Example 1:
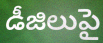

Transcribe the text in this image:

డీజిలుపై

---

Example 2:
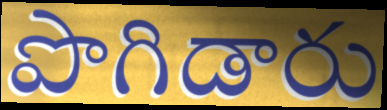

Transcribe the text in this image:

పొగిడారు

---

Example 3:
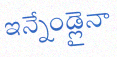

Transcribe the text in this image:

ఇన్నేండ్లైనా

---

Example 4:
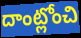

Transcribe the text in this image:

దాంట్లోంచి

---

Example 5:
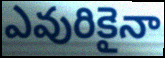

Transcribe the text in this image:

ఎవురికైనా